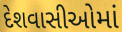
દેશવાસીઓમાં